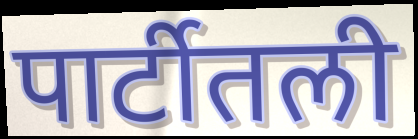
पार्टीतली